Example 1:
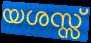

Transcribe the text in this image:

യശസ്സ്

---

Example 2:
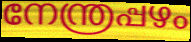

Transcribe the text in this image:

നേന്ത്രപ്പഴം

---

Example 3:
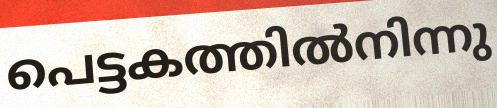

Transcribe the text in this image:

പെട്ടകത്തിൽനിന്നു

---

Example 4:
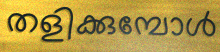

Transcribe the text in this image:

തളിക്കുമ്പോൾ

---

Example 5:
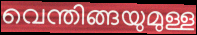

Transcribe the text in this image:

വെന്തിങ്ങയുമുള്ള